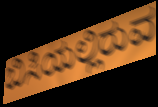
ಬಿಸಿಯಲ್ಲಿರುವ